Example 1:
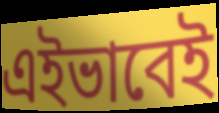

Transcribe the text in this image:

এইভাবেই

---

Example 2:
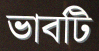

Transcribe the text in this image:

ভাবটি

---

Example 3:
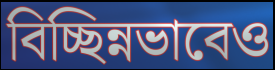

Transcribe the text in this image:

বিচ্ছিন্নভাবেও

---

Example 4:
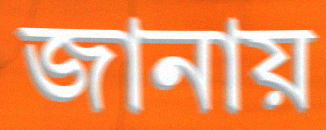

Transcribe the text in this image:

জানায়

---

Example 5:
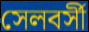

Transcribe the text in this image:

সেলবর্সী